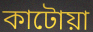
কাটোয়া